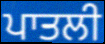
ਪਾਤਲੀ